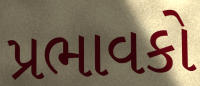
પ્રભાવકો